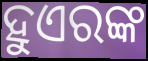
ହୁଏରଙ୍କ